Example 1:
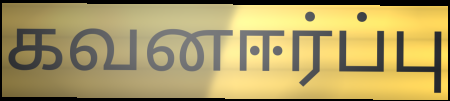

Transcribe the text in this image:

கவனஈர்ப்பு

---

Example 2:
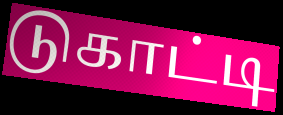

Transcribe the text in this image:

டுகாட்டி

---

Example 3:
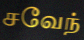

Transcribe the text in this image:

சவேந்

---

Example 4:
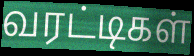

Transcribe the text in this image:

வரட்டிகள்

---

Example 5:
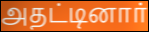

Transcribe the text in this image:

அதட்டினார்